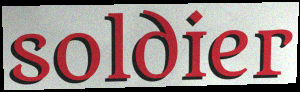
soldier